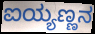
ಐಯ್ಯಣ್ಣನ